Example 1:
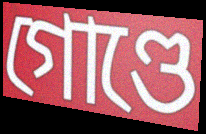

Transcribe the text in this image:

গোণ্ডে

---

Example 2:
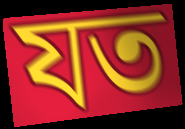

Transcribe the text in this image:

যত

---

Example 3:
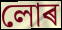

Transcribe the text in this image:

লোৰ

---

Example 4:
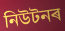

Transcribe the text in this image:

নিউটনৰ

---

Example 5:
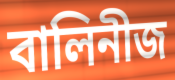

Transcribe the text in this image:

বালিনীজ